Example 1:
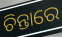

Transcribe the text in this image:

ଚିନ୍ତାରେ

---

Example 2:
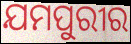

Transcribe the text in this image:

ଯମପୁରୀର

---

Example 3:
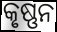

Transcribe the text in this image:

କୃଷ୍ଣନ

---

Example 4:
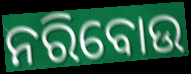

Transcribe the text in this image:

ନରିବୋଉ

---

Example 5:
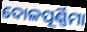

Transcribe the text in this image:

ଦୋଳପୂର୍ଣ୍ଣିମା